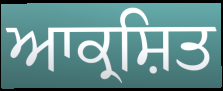
ਆਕ੍ਰਸ਼ਿਤ